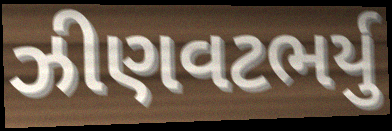
ઝીણવટભર્યુ